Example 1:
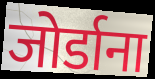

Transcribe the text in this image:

जोर्डाना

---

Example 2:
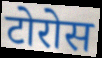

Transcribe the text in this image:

टोरोस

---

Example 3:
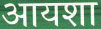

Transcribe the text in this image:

आयशा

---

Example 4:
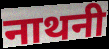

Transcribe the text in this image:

नाथनी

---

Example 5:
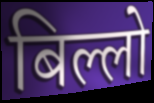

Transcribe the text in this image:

बिल्लो